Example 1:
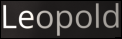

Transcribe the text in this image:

Leopold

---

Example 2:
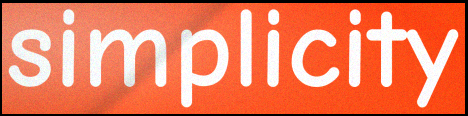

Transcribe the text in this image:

simplicity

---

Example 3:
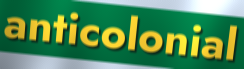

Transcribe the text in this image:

anticolonial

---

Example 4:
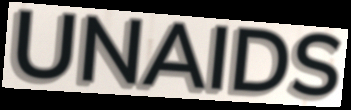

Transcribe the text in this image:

UNAIDS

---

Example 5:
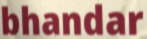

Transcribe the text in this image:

bhandar